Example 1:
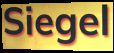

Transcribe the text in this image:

Siegel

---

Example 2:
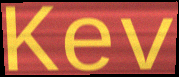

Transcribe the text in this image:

Kev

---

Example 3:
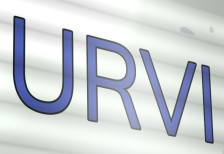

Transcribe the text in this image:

URVI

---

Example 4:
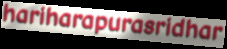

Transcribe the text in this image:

hariharapurasridhar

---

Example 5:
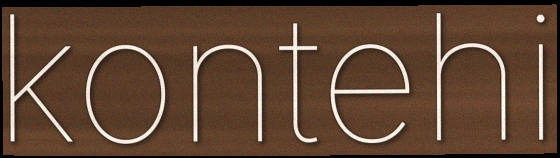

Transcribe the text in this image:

kontehi